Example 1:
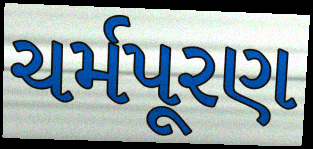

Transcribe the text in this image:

ચર્મપૂરણ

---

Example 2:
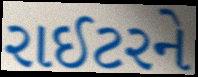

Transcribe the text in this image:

રાઈટરને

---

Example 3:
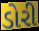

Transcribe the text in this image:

ડોરી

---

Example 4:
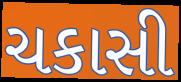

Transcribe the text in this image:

ચકાસી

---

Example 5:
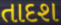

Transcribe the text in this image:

તાદશ